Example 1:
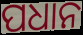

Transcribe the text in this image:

ପଧାନ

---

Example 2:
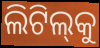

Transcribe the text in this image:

ଲିଟିଲ୍‌କୁ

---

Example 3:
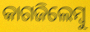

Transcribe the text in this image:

କାଗଜିଲେମ୍ବୁ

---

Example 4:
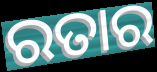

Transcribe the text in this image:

ରତାର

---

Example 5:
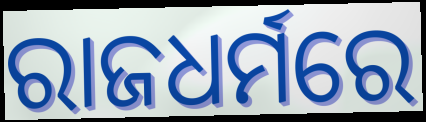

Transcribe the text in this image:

ରାଜଧର୍ମରେ